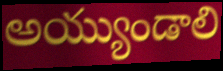
అయ్యుండాలి